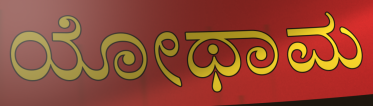
ಯೋಥಾಮ